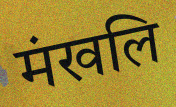
मंखलि